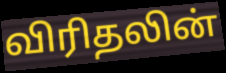
விரிதலின்